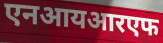
एनआयआरएफ